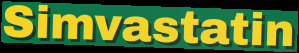
Simvastatin